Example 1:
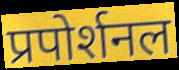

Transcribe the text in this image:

प्रपोर्शनल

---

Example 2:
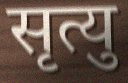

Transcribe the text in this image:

सृत्यु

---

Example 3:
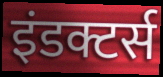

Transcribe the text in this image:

इंडक्टर्स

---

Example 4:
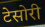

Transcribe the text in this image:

टेसोरी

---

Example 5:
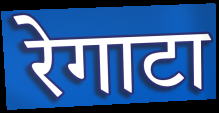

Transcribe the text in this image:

रेगाटा